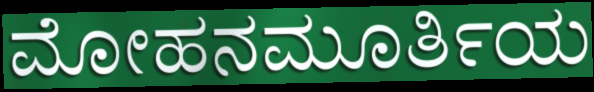
ಮೋಹನಮೂರ್ತಿಯ